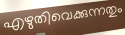
എഴുതിവെക്കുന്നതും